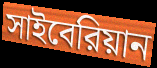
সাইবেরিয়ান